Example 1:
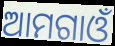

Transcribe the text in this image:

ଆମଗାଓଁ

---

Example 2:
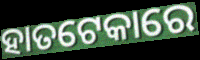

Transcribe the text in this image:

ହାତଟେକାରେ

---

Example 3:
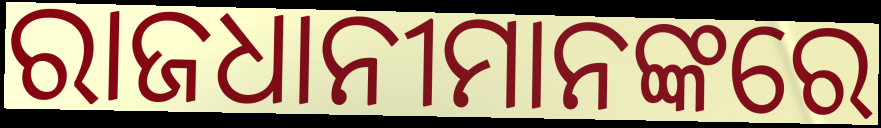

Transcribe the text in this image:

ରାଜଧାନୀମାନଙ୍କରେ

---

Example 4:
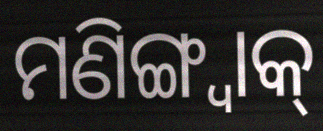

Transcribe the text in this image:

ମଣିଙ୍ଗ୍ୱାକ୍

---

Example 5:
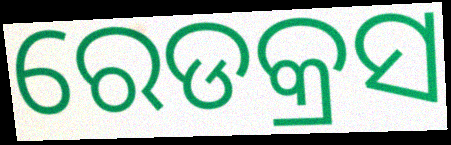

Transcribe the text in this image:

ରେଡକ୍ରସ